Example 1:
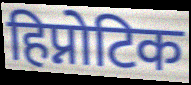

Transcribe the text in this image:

हिप्नोटिक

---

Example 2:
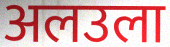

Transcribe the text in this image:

अलउला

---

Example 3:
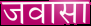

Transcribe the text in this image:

जवासा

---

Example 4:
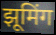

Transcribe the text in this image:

झूमिंग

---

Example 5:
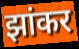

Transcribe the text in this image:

झांकर